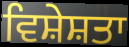
ਵਿਸ਼ੇਸ਼ਤਾ